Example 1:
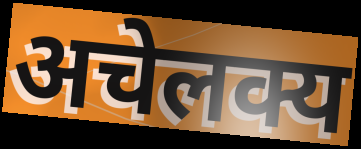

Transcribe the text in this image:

अचेलक्य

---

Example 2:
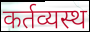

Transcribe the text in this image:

कर्तव्यस्थ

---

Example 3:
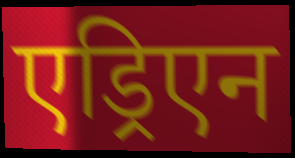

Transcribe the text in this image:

एड्रिएन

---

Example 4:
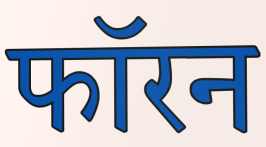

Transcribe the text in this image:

फॉरन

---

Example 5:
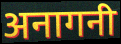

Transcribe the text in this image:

अनागनी